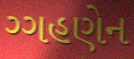
ગ્ગહણેન